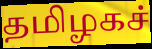
தமிழகச்